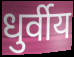
धुर्वीय